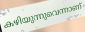
കഴിയുന്നുവെന്നാണ്